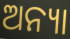
ଅନ୍ୟା